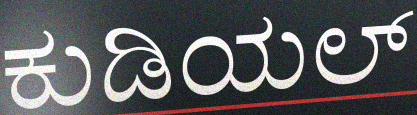
ಕುಡಿಯಲ್